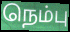
நெம்பு